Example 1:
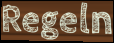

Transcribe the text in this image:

Regeln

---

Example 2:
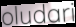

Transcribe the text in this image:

oludari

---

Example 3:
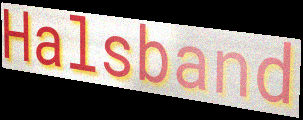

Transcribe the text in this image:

Halsband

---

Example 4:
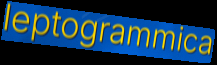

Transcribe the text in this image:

leptogrammica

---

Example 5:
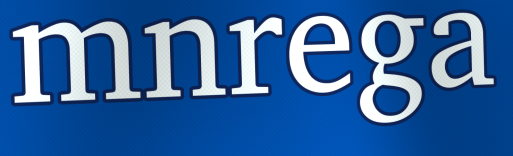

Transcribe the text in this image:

mnrega